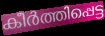
കീർത്തിപ്പെട്ട